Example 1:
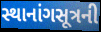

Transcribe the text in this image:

સ્થાનાંગસૂત્રની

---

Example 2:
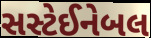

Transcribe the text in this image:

સસ્ટેઈનેબલ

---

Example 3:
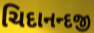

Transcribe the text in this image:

ચિદાનન્દજી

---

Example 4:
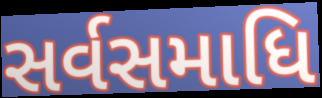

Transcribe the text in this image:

સર્વસમાધિ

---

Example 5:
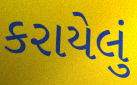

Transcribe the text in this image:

કરાયેલું